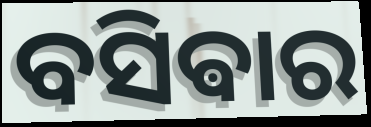
ବସିଵାର